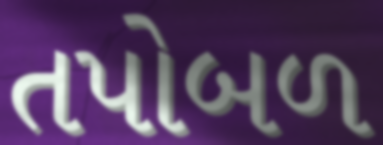
તપોબળ